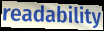
readability